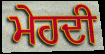
ਮੇਹਦੀ